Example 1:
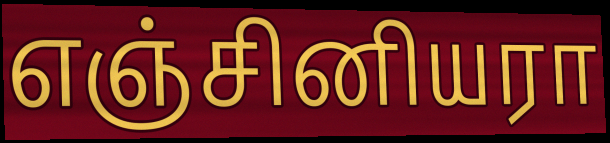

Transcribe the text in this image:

எஞ்சினியரா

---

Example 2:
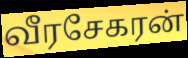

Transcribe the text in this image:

வீரசேகரன்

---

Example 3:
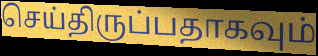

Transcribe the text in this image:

செய்திருப்பதாகவும்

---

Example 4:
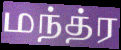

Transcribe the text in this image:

மந்த்ர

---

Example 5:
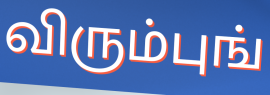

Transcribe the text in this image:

விரும்புங்